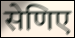
सेणिए